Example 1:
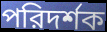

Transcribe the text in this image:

পরিদর্শক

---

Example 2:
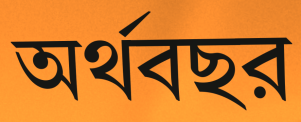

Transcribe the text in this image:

অর্থবছর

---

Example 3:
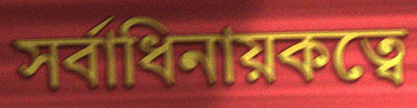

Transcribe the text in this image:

সর্বাধিনায়কত্বে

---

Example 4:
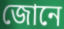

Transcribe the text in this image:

জোনে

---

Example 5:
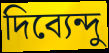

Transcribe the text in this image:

দিব্যেন্দু